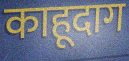
काहूदाग